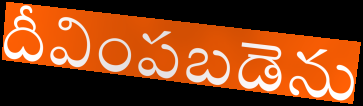
దీవింపబడెను